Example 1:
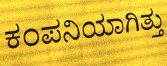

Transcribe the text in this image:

ಕಂಪನಿಯಾಗಿತ್ತು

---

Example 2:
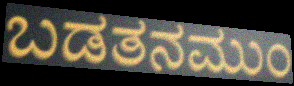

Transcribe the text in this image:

ಬಡತನಮುಂ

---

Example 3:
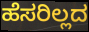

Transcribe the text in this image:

ಹೆಸರಿಲ್ಲದ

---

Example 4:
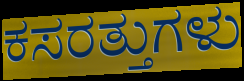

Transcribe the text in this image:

ಕಸರತ್ತುಗಳು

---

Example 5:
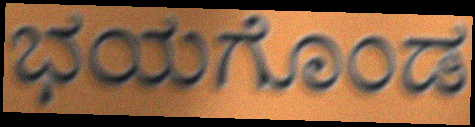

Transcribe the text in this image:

ಭಯಗೊಂಡ